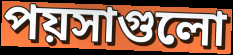
পয়সাগুলো